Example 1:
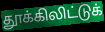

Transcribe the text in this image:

தூக்கிலிட்டுக்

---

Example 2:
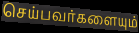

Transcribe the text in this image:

செய்பவர்களையும்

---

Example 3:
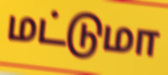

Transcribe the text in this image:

மட்டுமா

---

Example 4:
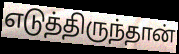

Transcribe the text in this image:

எடுத்திருந்தான்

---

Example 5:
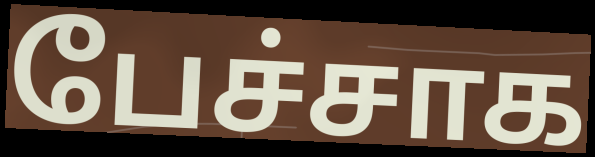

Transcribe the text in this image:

பேச்சாக